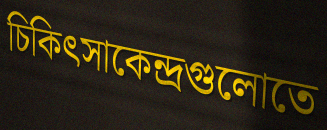
চিকিৎসাকেন্দ্রগুলোতে